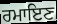
ਰਮਾਇਣ